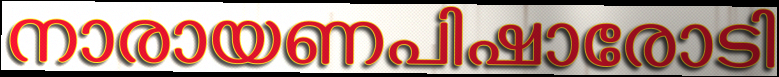
നാരായണപിഷാരോടി